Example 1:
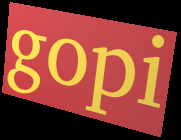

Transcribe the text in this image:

gopi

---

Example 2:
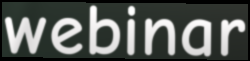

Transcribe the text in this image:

webinar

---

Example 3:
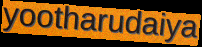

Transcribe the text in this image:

yootharudaiya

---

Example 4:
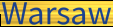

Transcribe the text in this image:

Warsaw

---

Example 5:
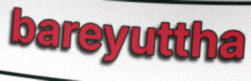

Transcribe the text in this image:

bareyuttha